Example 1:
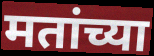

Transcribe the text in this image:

मतांच्या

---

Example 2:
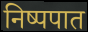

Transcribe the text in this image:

निष्पपात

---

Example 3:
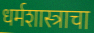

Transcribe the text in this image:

धर्मशास्त्राचा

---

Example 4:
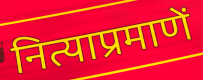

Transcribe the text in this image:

नित्याप्रमाणें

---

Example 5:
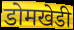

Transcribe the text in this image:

डोमखेडी